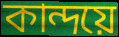
কান্দয়ে